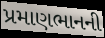
પ્રમાણભાનની